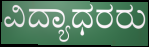
ವಿದ್ಯಾಧರರು